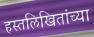
हस्तलिखितांच्या